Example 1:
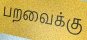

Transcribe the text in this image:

பறவைக்கு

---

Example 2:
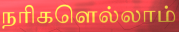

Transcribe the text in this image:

நரிகளெல்லாம்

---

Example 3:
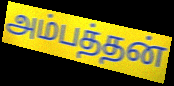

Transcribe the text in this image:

அம்பத்தன்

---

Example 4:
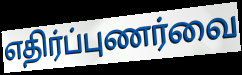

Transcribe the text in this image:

எதிர்ப்புணர்வை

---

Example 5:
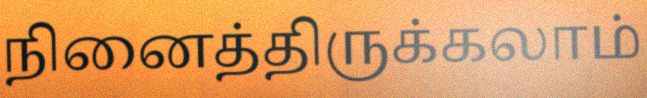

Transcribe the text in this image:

நினைத்திருக்கலாம்